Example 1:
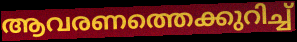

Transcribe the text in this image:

ആവരണത്തെക്കുറിച്ച്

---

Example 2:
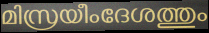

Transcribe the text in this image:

മിസ്രയീംദേശത്തും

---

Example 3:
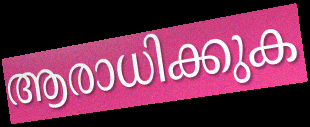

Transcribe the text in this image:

ആരാധിക്കുക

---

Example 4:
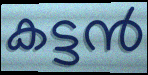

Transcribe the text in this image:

കട്ടൻ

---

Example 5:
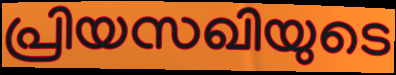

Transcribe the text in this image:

പ്രിയസഖിയുടെ